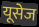
यूसेज